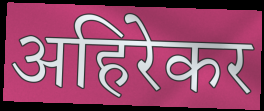
अहिरेकर